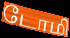
டோமி